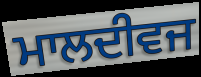
ਮਾਲਦੀਵਜ